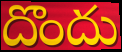
దొందు